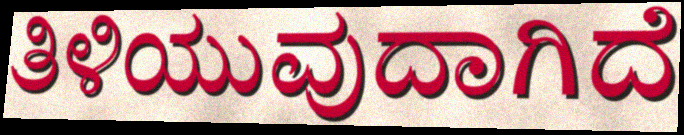
ತಿಳಿಯುವುದಾಗಿದೆ